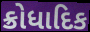
ક્રોધાદિક